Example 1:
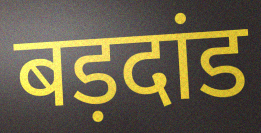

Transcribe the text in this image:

बड़दांड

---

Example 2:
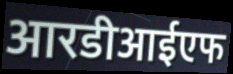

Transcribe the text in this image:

आरडीआईएफ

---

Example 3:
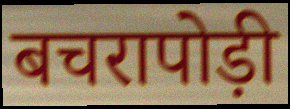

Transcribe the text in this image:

बचरापोड़ी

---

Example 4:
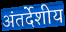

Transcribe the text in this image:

अंतर्देशीय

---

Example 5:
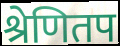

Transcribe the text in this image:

श्रेणितप